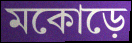
মকোড়ে